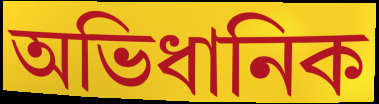
অভিধানিক